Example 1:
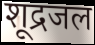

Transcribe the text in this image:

शूद्रजल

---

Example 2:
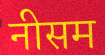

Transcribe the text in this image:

नीसम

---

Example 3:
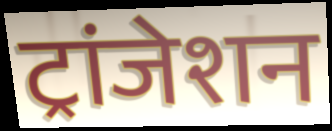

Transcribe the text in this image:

ट्रांजेशन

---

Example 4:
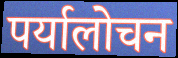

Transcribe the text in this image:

पर्यालोचन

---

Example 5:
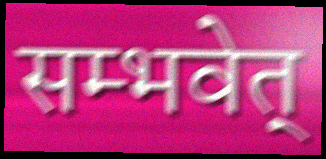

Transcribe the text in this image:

सम्भवेत्